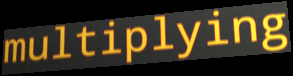
multiplying